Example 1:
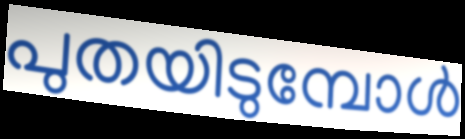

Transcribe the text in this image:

പുതയിടുമ്പോൾ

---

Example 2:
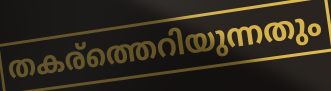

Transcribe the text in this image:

തകര്ത്തെറിയുന്നതും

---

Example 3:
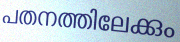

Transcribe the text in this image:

പതനത്തിലേക്കും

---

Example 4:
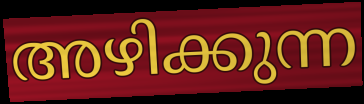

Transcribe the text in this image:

അഴിക്കുന്ന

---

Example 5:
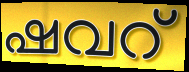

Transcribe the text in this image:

ഷവറ്